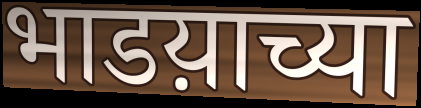
भाडय़ाच्या